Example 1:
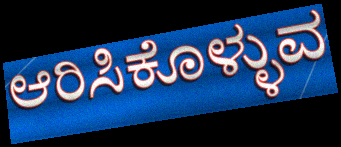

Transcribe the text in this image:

ಆರಿಸಿಕೊಳ್ಳುವ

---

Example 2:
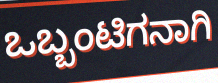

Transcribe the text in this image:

ಒಬ್ಬಂಟಿಗನಾಗಿ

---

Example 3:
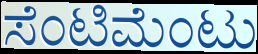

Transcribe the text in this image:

ಸೆಂಟಿಮೆಂಟು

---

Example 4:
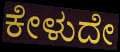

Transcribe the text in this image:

ಕೇಳುದೇ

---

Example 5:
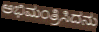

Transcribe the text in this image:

ಅಭಿಮಂತ್ರಿಸಿದನು